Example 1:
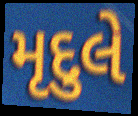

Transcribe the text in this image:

મૃદુલે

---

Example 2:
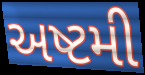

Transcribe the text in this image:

અષ્ટમી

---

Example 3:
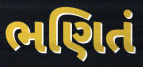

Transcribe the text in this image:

ભણિતં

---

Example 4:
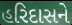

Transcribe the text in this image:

હરિદાસને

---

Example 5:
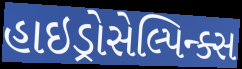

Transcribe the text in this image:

હાઇડ્રોસેલ્પિન્ક્સ